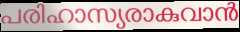
പരിഹാസ്യരാകുവാൻ